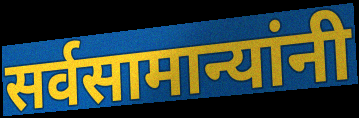
सर्वसामान्यांनी